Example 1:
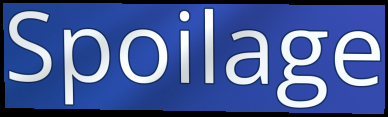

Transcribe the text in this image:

Spoilage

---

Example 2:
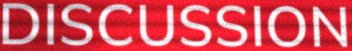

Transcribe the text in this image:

DISCUSSION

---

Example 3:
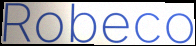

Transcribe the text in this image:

Robeco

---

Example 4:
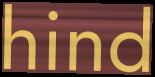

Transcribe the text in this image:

hind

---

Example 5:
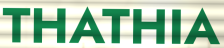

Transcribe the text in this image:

THATHIA